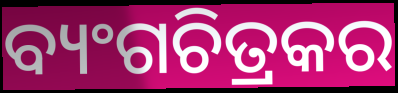
ବ୍ୟଂଗଚିତ୍ରକର